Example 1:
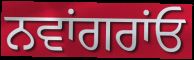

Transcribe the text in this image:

ਨਵਾਂਗਰਾਂਓ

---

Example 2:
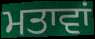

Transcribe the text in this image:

ਮਤਾਵਾਂ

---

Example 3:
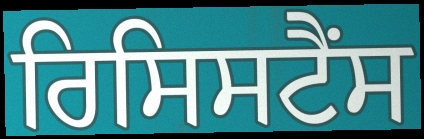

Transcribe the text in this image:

ਰਿਸਿਸਟੈਂਸ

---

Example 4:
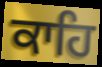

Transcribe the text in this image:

ਕਾਹਿ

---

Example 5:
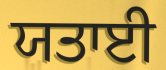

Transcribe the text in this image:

ਯਤਾਈ